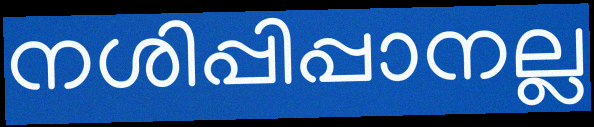
നശിപ്പിപ്പാനല്ല